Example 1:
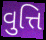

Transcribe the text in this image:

વુત્તિ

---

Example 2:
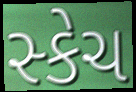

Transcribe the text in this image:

સ્કેચ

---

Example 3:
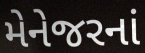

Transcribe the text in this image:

મેનેજરનાં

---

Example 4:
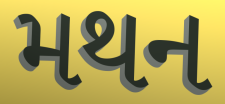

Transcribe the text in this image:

મથન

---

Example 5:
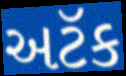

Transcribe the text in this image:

અટૅક